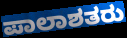
ಪಾಲಾಶತರು